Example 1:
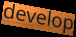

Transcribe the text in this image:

develop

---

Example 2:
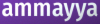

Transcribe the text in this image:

ammayya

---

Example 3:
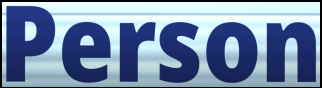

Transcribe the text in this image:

Person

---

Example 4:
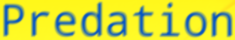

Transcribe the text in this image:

Predation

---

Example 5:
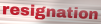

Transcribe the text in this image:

resignation